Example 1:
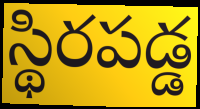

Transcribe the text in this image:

స్థిరపడ్డ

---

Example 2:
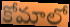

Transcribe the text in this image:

కోమాలో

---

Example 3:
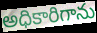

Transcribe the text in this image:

అధికారిగాను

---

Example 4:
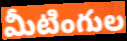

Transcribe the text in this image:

మీటింగుల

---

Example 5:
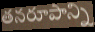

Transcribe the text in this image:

తనరూపాన్ని